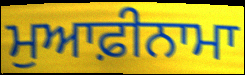
ਮੁਆਫ਼ੀਨਾਮਾ